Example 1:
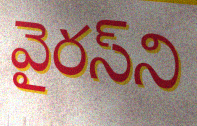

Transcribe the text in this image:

వైరస్‌ని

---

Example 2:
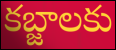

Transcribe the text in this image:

కబ్జాలకు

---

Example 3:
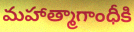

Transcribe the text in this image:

మహాత్మాగాంధీకి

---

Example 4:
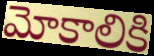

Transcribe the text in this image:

మోకాలికి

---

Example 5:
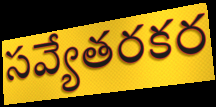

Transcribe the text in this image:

సవ్యేతరకర